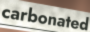
carbonated